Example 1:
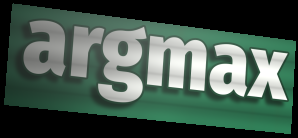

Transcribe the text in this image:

argmax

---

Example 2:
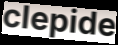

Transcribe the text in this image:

clepide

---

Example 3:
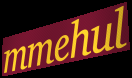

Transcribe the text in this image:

mmehul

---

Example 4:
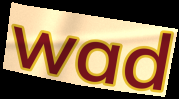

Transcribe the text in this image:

wad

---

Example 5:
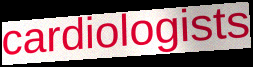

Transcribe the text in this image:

cardiologists